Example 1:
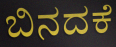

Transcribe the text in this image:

ಬಿನದಕೆ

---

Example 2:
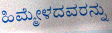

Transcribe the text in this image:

ಹಿಮ್ಮೇಳದವರನ್ನು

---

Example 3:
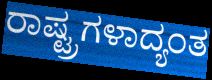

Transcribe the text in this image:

ರಾಷ್ಟ್ರಗಳಾದ್ಯಂತ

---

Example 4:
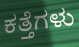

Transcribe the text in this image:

ಕತ್ತೆಗಳು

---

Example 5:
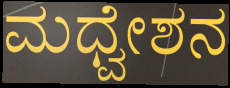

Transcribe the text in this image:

ಮಧ್ವೇಶನ